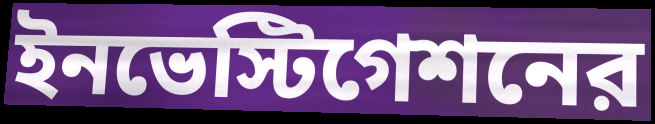
ইনভেস্টিগেশনের